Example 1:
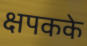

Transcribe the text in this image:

क्षपकके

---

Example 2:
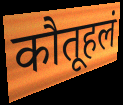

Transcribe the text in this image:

कौतूहलं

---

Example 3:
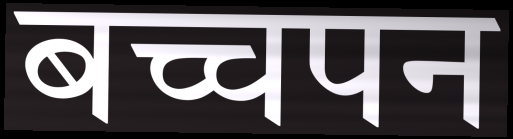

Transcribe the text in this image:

बच्चपन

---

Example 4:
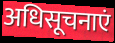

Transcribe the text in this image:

अधिसूचनाएं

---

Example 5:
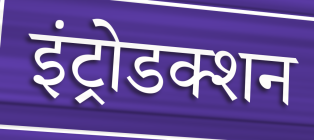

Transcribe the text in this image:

इंट्रोडक्शन